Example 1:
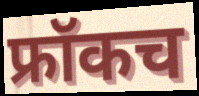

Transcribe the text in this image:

फ्रॉकच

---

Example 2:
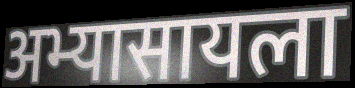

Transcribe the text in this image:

अभ्यासायला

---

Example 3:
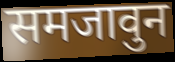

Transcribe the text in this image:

समजावुन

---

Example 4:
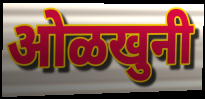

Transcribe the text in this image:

ओळखुनी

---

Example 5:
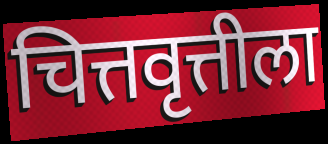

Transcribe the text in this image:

चित्तवृत्तीला